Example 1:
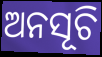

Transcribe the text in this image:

ଅନସୂଚି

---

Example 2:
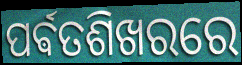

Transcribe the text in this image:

ପର୍ଵତଶିଖରରେ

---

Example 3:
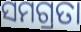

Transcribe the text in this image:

ସମଗ୍ରତା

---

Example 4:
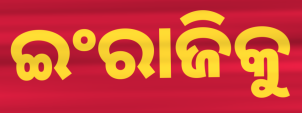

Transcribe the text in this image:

ଇଂରାଜିକୁ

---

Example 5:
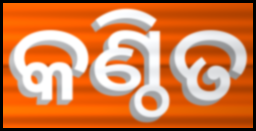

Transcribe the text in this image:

କଣ୍ଠିତ